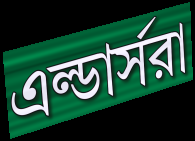
এল্ডার্সরা